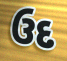
ઉદ